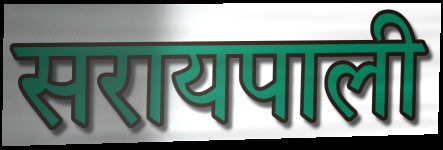
सरायपाली